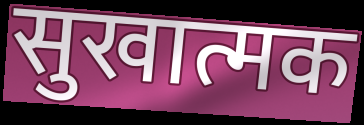
सुखात्मक